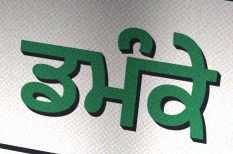
ਡਮੰਕੇ